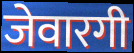
जेवारगी